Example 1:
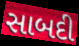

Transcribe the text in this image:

સાબદી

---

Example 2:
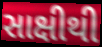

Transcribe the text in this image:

સાક્ષીથી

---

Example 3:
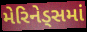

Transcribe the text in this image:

મેરિનેડ્સમાં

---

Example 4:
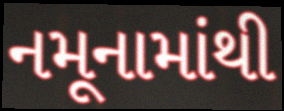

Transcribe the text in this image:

નમૂનામાંથી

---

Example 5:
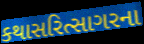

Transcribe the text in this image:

કથાસરિત્સાગરના